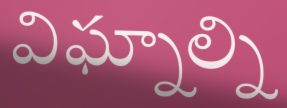
విఘ్నాల్ని